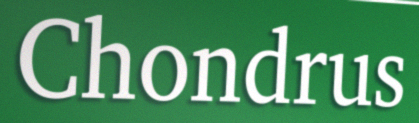
Chondrus